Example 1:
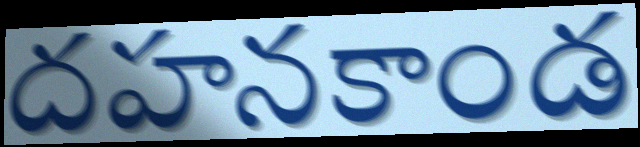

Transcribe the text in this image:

దహనకాండ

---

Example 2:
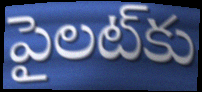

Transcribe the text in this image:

పైలట్‌కు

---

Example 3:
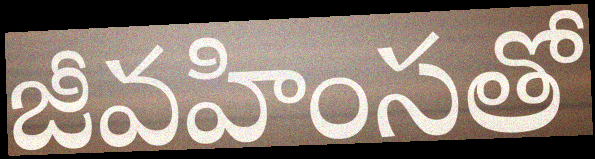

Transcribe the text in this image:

జీవహింసతో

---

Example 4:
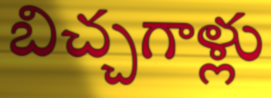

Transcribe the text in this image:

బిచ్చగాళ్లు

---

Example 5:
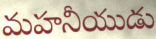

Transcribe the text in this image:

మహనీయుడు